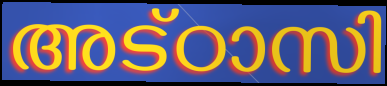
അട്ഠാസി